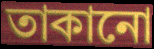
তাকানো